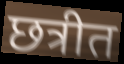
छत्रीत